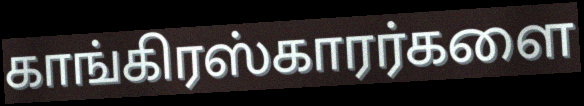
காங்கிரஸ்காரர்களை